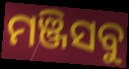
ମଞ୍ଜିସବୁ